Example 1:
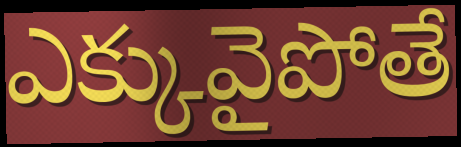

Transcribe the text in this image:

ఎక్కువైపోతే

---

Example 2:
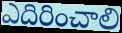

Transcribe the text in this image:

ఎదిరించాలి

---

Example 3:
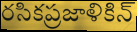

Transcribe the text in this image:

రసికప్రజాళికిన్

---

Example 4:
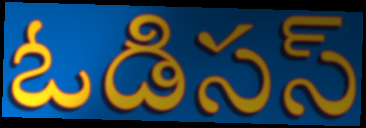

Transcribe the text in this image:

ఓడిసస్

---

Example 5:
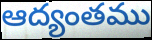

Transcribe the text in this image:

ఆద్యంతము